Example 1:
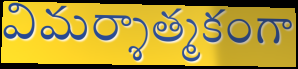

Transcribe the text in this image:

విమర్శాత్మకంగా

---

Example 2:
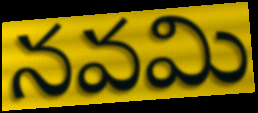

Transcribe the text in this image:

నవమి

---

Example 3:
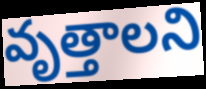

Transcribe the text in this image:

వృత్తాలని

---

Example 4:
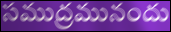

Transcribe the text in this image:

సముద్రమునందు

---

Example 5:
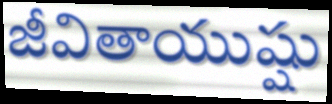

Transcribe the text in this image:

జీవితాయుష్షు